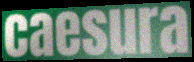
caesura